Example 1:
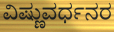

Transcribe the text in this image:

ವಿಷ್ಣುವರ್ಧನರ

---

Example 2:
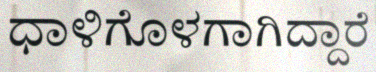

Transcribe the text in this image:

ಧಾಳಿಗೊಳಗಾಗಿದ್ದಾರೆ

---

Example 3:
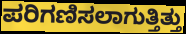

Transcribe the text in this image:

ಪರಿಗಣಿಸಲಾಗುತ್ತಿತ್ತು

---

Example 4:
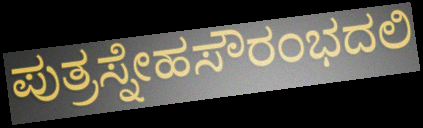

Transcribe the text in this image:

ಪುತ್ರಸ್ನೇಹಸೌರಂಭದಲಿ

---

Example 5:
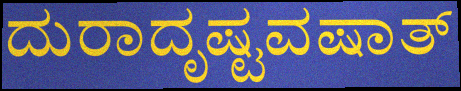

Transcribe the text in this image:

ದುರಾದೃಷ್ಟವಷಾತ್